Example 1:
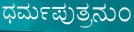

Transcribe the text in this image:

ಧರ್ಮಪುತ್ರನುಂ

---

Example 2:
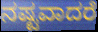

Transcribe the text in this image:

ನಷ್ಟವಾದರೆ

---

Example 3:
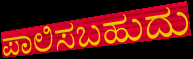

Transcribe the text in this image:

ಪಾಲಿಸಬಹುದು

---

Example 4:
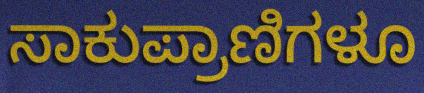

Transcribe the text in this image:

ಸಾಕುಪ್ರಾಣಿಗಳೂ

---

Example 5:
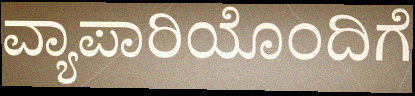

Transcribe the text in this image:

ವ್ಯಾಪಾರಿಯೊಂದಿಗೆ